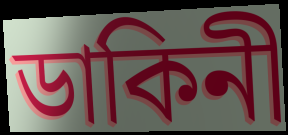
ডাকিনী